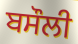
ਬਸੌਲੀ